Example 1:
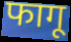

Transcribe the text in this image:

फागू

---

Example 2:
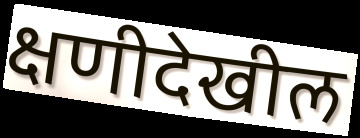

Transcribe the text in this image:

क्षणीदेखील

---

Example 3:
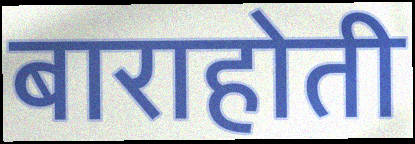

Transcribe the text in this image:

बाराहोती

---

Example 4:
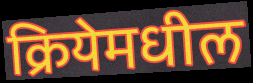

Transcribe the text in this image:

क्रियेमधील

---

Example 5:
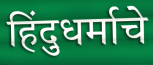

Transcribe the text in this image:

हिंदुधर्माचे